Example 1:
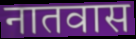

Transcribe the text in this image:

नातवास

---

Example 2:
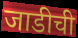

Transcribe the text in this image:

जाडीची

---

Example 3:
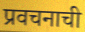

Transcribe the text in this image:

प्रवचनाची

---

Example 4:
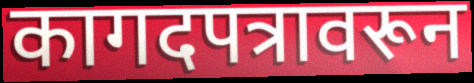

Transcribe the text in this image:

कागदपत्रावरून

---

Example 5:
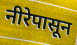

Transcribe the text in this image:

नीरेपासून